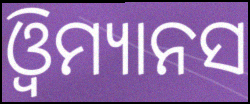
ଓ୍ବିମ୍ୟାନସ